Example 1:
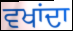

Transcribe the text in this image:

ਵਖਾਂਦਾ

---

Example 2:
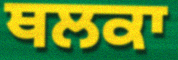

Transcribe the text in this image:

ਥਲਕਾ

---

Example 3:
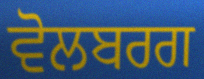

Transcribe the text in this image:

ਵੋਲਬਰਗ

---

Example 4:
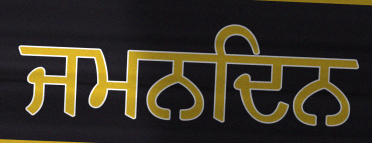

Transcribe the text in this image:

ਜਮਨਦਿਨ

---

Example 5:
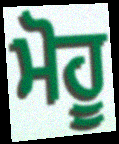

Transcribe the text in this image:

ਮੋਹੂ